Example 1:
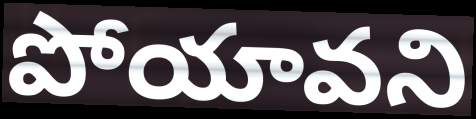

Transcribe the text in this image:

పోయావని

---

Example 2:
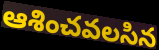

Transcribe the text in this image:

ఆశించవలసిన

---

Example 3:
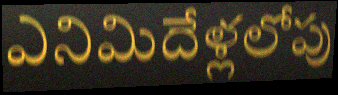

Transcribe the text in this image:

ఎనిమిదేళ్లలోపు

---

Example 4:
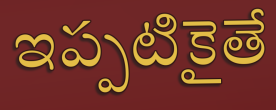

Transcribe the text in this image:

ఇప్పటికైతే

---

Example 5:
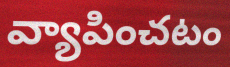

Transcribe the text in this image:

వ్యాపించటం